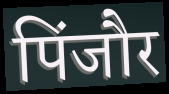
पिंजौर